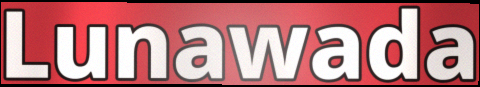
Lunawada